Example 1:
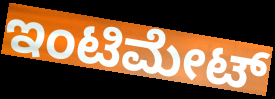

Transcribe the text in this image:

ಇಂಟಿಮೇಟ್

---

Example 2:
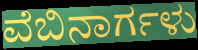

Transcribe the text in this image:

ವೆಬಿನಾರ್ಗಳು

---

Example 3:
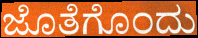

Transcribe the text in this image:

ಜೊತೆಗೊಂದು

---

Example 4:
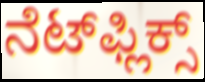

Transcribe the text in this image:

ನೆಟ್‌ಫ್ಲಿಕ್ಸ್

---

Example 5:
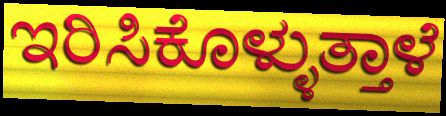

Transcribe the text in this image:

ಇರಿಸಿಕೊಳ್ಳುತ್ತಾಳೆ